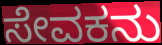
ಸೇವಕನು